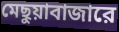
মেছুয়াবাজারে